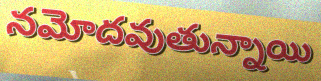
నమోదవుతున్నాయి